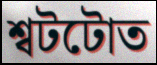
শ্বটটোত